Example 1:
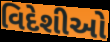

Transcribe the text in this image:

વિદેશીઓ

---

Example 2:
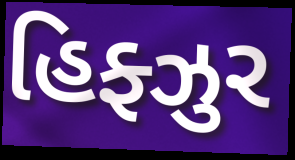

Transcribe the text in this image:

હિફ્ઝુર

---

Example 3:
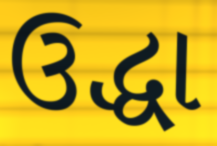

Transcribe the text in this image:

ઉદ્ધા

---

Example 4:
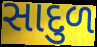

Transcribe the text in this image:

સાદુળ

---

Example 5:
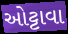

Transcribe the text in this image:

ઓટ્ટાવા